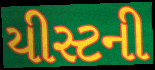
યીસ્ટની